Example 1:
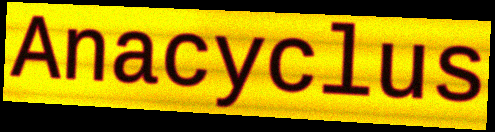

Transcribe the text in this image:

Anacyclus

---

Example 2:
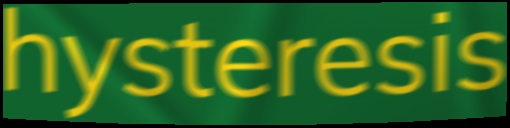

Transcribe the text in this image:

hysteresis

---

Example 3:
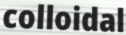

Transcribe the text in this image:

colloidal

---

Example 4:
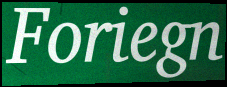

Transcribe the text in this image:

Foriegn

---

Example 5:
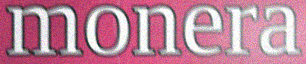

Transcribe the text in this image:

monera